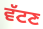
ਵੱਟਣ